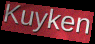
Kuyken